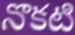
నొకటి